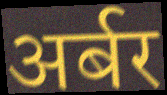
अर्बर